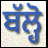
ਬੱਲ੍ਹੋ